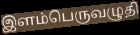
இளம்பெருவழுதி